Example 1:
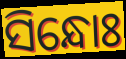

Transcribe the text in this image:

ସିନ୍ଧୋଃ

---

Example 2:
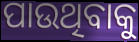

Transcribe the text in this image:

ପାଉଥିବାକୁ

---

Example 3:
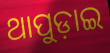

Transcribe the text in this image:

ଥାପୁଡ଼ାଇ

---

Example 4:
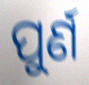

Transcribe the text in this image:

ପୁର୍ଣ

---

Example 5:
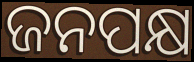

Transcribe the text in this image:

ଜନପକ୍ଷ